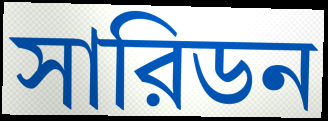
সারিডন